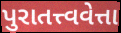
પુરાતત્ત્વવેત્તા